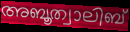
അബൂത്വാലിബ്